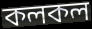
কলকল